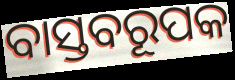
ବାସ୍ତବରୂପକ